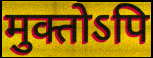
मुक्तोऽपि